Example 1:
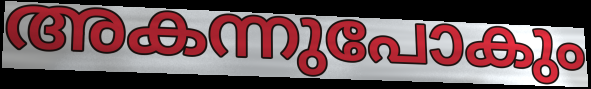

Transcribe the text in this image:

അകന്നുപോകും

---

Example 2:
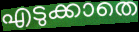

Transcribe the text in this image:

എടുക്കാതെ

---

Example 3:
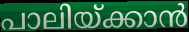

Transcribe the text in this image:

പാലിയ്ക്കാൻ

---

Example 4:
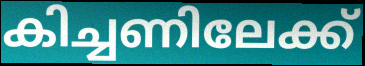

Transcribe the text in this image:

കിച്ചണിലേക്ക്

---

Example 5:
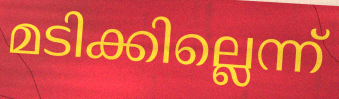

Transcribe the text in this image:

മടിക്കില്ലെന്ന്